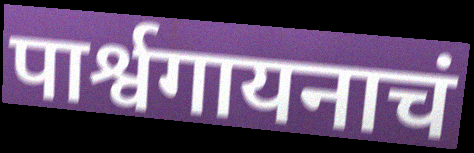
पार्श्वगायनाचं